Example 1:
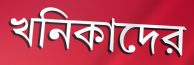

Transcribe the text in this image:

খনিকাদের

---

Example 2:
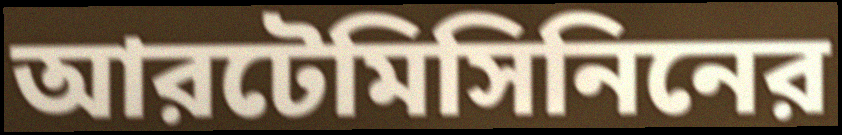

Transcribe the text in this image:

আরটেমিসিনিনের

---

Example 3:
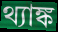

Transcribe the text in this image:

থ্যাঙ্ক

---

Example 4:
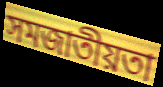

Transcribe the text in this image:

সমজাতীয়তা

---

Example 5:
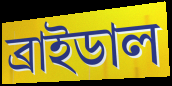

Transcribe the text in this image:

ব্রাইডাল